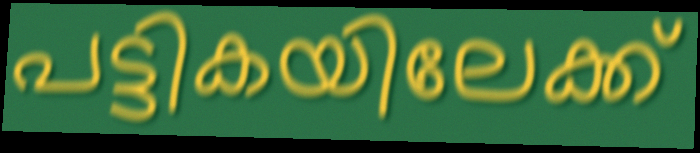
പട്ടികയിലേക്ക്